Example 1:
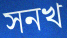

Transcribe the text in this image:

সনখ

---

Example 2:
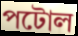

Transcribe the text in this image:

পটোল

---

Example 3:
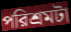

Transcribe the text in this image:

পরিশ্রমটা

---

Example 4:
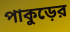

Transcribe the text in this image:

পাকুড়ের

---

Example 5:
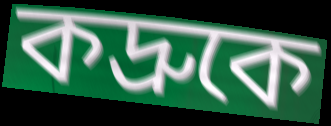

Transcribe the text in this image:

কদ্রুকে